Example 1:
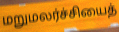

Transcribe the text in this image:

மறுமலர்ச்சியைத்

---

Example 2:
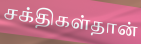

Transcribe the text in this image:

சக்திகள்தான்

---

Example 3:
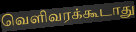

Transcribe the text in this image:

வெளிவரக்கூடாது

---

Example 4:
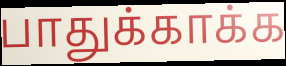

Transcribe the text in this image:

பாதுக்காக்க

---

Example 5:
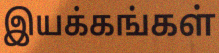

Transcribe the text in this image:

இயக்கங்கள்